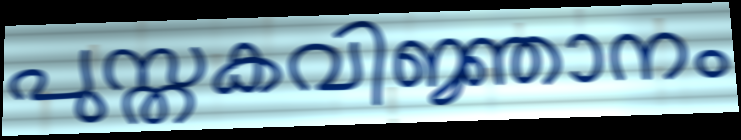
പുസ്തകവിജ്ഞാനം